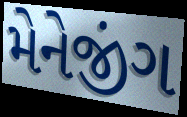
મેનેજીંગ